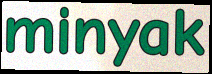
minyak